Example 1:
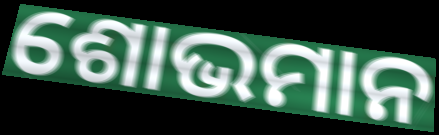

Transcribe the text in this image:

ଶୋଭମାନ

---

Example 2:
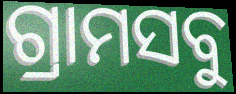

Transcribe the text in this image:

ଗ୍ରାମସବୁ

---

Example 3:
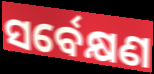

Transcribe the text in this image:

ସର୍ବେକ୍ଷଣ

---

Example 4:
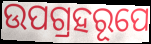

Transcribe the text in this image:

ଉପଗ୍ରହରୂପେ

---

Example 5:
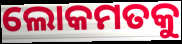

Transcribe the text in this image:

ଲୋକମତକୁ